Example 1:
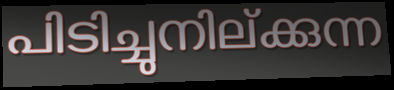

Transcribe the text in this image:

പിടിച്ചുനില്ക്കുന്ന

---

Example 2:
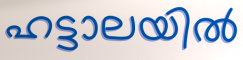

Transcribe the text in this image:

ഹട്ടാലയിൽ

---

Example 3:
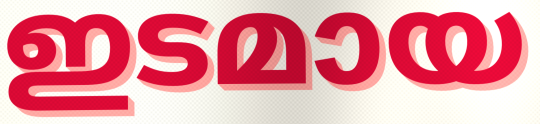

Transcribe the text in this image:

ഇടമായ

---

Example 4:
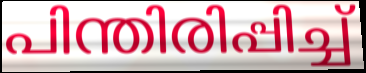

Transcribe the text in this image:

പിന്തിരിപ്പിച്ച്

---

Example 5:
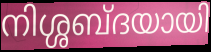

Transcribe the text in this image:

നിശ്ശബ്ദയായി